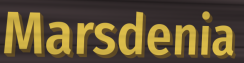
Marsdenia